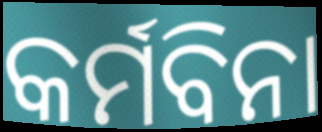
କର୍ମବିନା